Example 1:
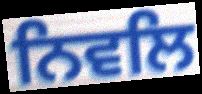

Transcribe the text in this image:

ਨਿਵਲਿ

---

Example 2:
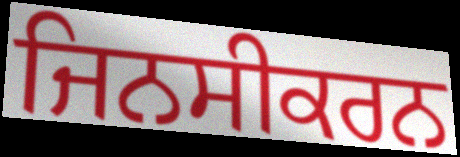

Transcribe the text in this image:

ਜਿਨਸੀਕਰਨ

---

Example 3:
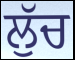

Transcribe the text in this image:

ਲੁੱਚ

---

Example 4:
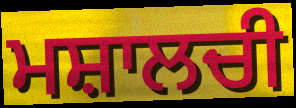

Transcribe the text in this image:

ਮਸ਼ਾਲਚੀ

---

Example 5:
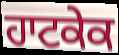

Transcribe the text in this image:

ਹਾਟਕੇਕ